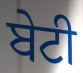
ਬੇਟੀ